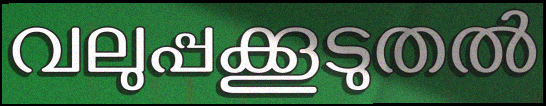
വലുപ്പക്കൂടുതൽ